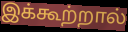
இக்கூற்றால்